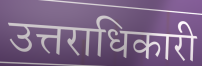
उत्तराधिकारी